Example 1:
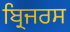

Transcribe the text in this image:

ਬ੍ਰਿਜਰਸ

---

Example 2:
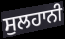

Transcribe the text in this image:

ਸੁਲਹਾਨੀ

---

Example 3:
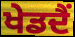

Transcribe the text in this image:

ਖੇਡਦੈਂ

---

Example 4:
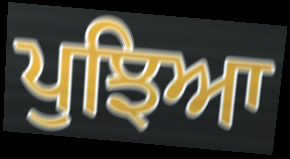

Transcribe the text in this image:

ਪੁਝਿਆ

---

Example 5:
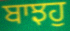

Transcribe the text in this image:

ਬਾਝਹੁ